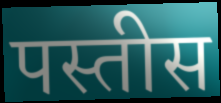
पस्तीस